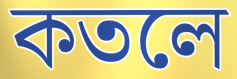
কতলে